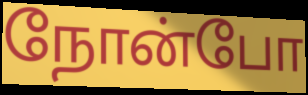
நோன்போ